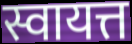
स्वायत्त